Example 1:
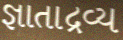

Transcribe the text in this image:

જ્ઞાતાદ્રવ્ય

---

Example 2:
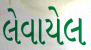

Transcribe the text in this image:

લેવાયેલ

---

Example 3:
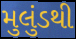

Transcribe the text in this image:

મુલુંડથી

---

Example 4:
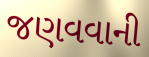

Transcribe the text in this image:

જણવવાની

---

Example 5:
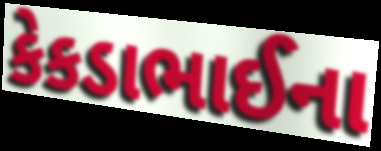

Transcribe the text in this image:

કેકડાભાઈના